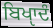
ਬਿਖੵਾਦੰ